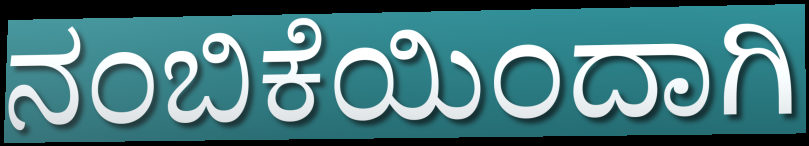
ನಂಬಿಕೆಯಿಂದಾಗಿ